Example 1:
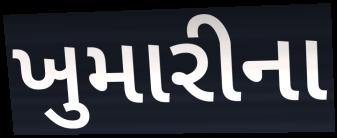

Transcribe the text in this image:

ખુમારીના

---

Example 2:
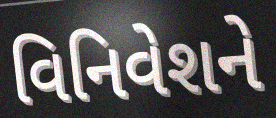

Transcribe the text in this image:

વિનિવેશને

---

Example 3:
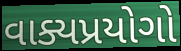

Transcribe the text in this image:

વાક્યપ્રયોગો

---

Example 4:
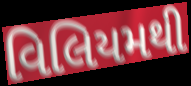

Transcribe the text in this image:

વિલિયમથી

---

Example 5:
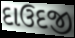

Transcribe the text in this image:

દાઉદજી